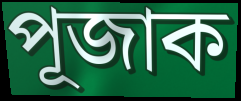
পূজাক